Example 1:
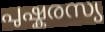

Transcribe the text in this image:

പുഷ്കരസ്യ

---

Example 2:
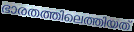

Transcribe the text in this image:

ഭാരതത്തിലെത്തിയത്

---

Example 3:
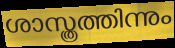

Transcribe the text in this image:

ശാസ്ത്രത്തിന്നും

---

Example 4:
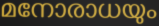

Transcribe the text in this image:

മനോരാധയും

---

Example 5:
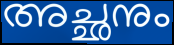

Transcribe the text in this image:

അച്ഛനും